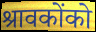
श्रावकोंको